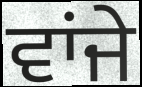
ਵਾਂਜੇ